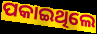
ପକାଇଥିଲେ